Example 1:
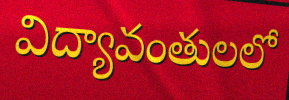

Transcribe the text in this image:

విద్యావంతులలో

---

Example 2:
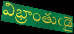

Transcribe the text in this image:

విభ్రాంతుఁడై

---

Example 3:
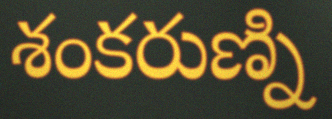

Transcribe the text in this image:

శంకరుణ్ని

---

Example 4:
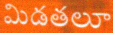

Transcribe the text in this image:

మిడతలూ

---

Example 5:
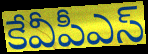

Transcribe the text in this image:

కేవీపీఎస్